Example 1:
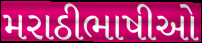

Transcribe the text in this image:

મરાઠીભાષીઓ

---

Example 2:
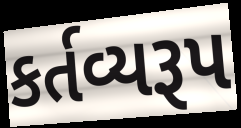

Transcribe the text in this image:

કર્તવ્યરૂપ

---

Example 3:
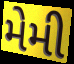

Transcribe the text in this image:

મેમી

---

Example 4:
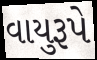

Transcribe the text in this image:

વાયુરૂપે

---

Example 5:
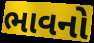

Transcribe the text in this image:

ભાવનો